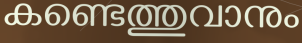
കണ്ടെത്തുവാനും